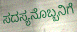
ಸದಸ್ಯನೊಬ್ಬನಿಗೆ